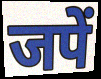
जपें